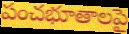
పంచభూతాలపై